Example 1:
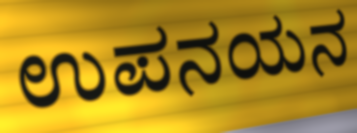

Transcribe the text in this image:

ಉಪನಯನ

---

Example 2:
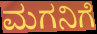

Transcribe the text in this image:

ಮಗನಿಗೆ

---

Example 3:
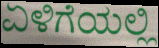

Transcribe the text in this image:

ಏಳಿಗೆಯಲ್ಲಿ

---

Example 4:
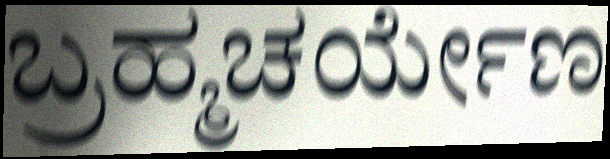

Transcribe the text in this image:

ಬ್ರಹ್ಮಚರ್ಯೇಣ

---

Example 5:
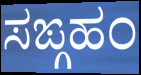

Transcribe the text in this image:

ಸಙ್ಗಹಂ